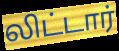
லிட்டார்